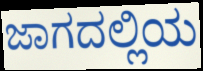
ಜಾಗದಲ್ಲಿಯ